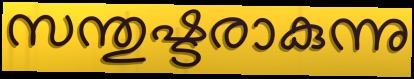
സന്തുഷ്ടരാകുന്നു